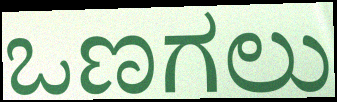
ಒಣಗಲು